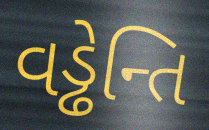
વડ્ઢેન્તિ